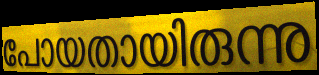
പോയതായിരുന്നു